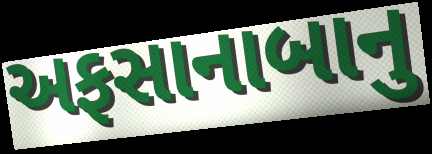
અફસાનાબાનુ